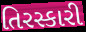
તિરસ્કારી